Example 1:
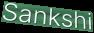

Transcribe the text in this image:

Sankshi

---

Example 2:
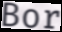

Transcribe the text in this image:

Bor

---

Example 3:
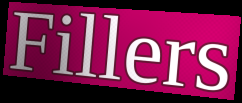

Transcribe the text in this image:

Fillers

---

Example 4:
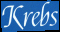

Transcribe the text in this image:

Krebs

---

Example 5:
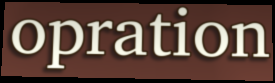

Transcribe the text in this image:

opration